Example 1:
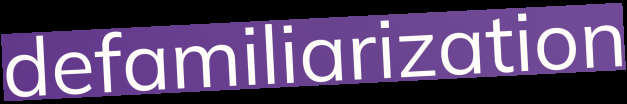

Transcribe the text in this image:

defamiliarization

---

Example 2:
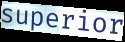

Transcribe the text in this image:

superior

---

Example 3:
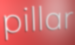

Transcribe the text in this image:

pillar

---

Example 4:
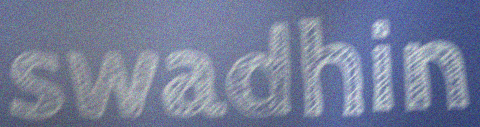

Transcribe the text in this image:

swadhin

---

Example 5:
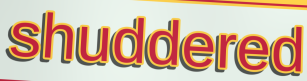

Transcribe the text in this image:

shuddered